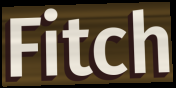
Fitch